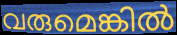
വരുമെങ്കിൽ